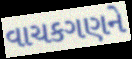
વાચકગણને